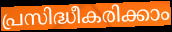
പ്രസിദ്ധീകരിക്കാം